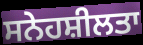
ਸਨੇਹਸ਼ੀਲਤਾ